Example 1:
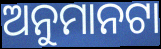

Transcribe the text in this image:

ଅନୁମାନଟା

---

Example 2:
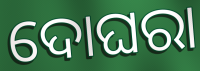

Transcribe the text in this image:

ଦୋଘରା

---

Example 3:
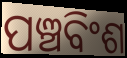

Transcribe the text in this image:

ପଞ୍ଚବିଂଶ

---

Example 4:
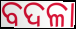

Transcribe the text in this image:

ବଦଳା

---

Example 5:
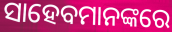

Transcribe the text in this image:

ସାହେବମାନଙ୍କରେ